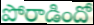
పోరాడిందో